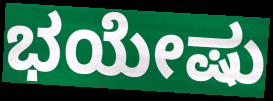
ಭಯೇಷು